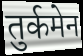
तुर्कमेन